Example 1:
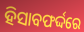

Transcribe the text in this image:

ହିସାବଫର୍ଦ୍ଦରେ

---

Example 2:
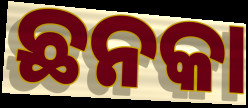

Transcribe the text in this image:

ଛନକା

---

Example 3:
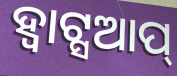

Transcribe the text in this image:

ହ୍ୱାଟ୍ସଆପ୍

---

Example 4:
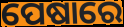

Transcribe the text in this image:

ପେଷାରେ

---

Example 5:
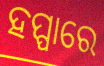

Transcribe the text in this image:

ହପ୍ପାରେ